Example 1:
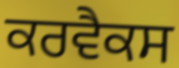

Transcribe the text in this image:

ਕਰਵੈਕਸ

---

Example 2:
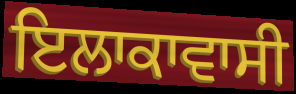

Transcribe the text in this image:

ਇਲਾਕਾਵਾਸੀ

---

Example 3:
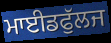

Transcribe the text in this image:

ਮਾਈਡਫੁੱਲਜ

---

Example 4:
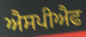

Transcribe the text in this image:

ਐਸਪੀਐਫ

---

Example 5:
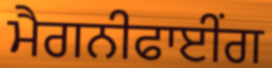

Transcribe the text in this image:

ਮੈਗਨੀਫਾਈਂਗ